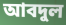
আবদুল